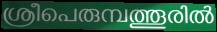
ശ്രീപെരുമ്പത്തൂരിൽ